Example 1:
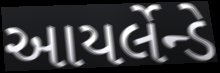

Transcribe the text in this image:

આયર્લેન્ડે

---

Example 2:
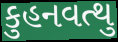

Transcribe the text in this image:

કુહનવત્થુ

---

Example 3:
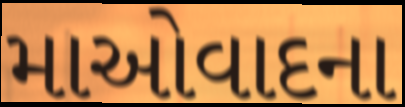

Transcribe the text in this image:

માઓવાદના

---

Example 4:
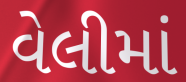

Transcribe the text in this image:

વેલીમાં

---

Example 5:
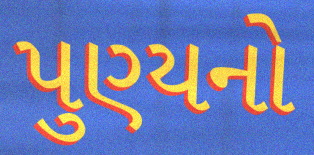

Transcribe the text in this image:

પુણ્યનો